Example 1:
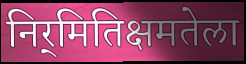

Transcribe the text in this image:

निर्मितिक्षमतेला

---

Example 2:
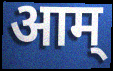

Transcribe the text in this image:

आम्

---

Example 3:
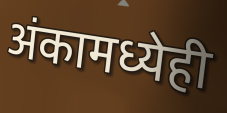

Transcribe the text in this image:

अंकामध्येही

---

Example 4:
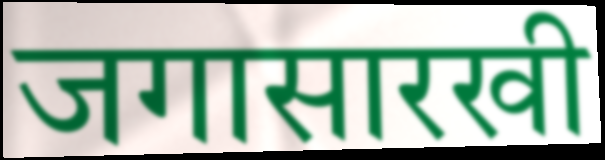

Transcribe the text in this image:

जगासारखी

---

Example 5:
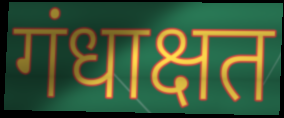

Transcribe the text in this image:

गंधाक्षत